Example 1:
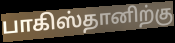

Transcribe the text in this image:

பாகிஸ்தானிற்கு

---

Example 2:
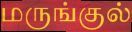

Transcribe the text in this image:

மருங்குல்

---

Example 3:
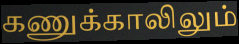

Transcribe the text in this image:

கணுக்காலிலும்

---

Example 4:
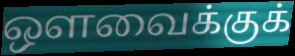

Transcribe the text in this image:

ஔவைக்குக்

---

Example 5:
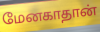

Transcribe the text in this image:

மேனகாதான்